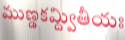
ముణ్డకమ్ద్వితీయః